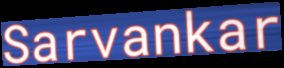
Sarvankar